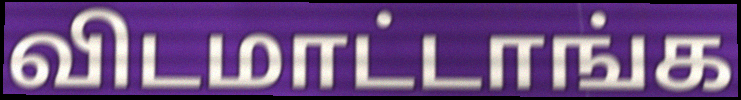
விடமாட்டாங்க